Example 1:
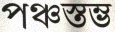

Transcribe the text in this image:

পঞ্চস্তম্ভ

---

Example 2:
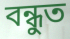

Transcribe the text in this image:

বন্ধুত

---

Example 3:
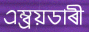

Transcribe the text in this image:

এম্ব্ৰয়ডাৰী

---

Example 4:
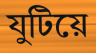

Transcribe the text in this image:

যুটিয়ে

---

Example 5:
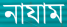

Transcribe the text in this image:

নাযাম